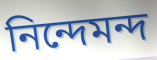
নিন্দেমন্দ